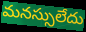
మనస్సులేదు